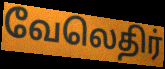
வேலெதிர்